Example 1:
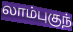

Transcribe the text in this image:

லாம்புகுந்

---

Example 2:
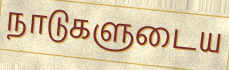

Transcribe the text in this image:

நாடுகளுடைய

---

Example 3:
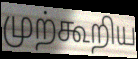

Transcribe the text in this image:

முற்கூறிய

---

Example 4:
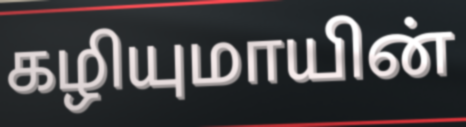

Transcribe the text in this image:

கழியுமாயின்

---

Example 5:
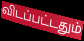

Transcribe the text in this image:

விடப்பட்டதும்